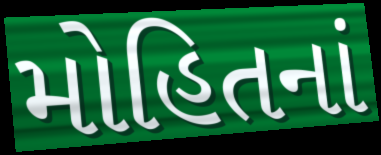
મોહિતનાં